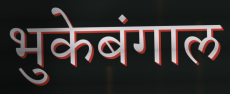
भुकेबंगाल